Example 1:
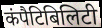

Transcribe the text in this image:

कंपैटिबिलिटी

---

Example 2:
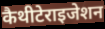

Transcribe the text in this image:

कैथीटेराइजेशन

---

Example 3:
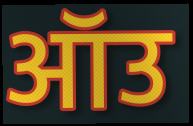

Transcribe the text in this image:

ऑउ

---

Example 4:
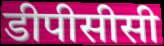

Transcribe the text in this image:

डीपीसीसी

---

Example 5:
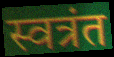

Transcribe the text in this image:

स्वत्रंत